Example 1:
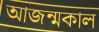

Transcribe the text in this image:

আজন্মকাল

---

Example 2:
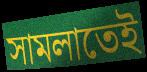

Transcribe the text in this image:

সামলাতেই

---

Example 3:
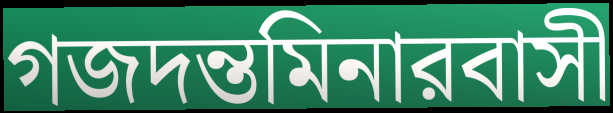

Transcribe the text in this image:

গজদন্তমিনারবাসী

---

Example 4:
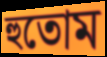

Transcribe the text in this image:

হুতোম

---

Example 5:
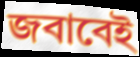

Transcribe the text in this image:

জবাবেই